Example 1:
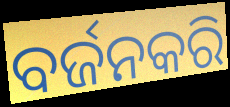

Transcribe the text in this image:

ବର୍ଜନକରି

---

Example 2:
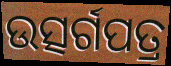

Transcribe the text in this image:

ଉତ୍ସର୍ଗପତ୍ର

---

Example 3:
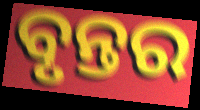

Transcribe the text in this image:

ବୃନ୍ତର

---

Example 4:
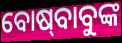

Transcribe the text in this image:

ବୋଷ୍‍ବାବୁଙ୍କ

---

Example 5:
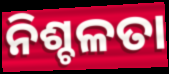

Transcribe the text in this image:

ନିଶ୍ଚଳତା